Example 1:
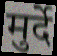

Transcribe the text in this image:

मुर्दे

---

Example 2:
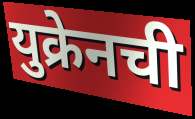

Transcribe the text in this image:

युक्रेनची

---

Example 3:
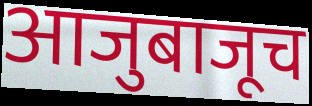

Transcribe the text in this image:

आजुबाजूच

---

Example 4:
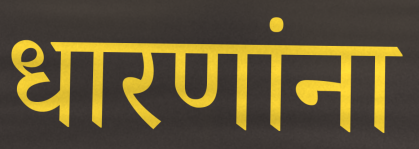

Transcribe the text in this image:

धारणांना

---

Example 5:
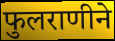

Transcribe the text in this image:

फुलराणीने